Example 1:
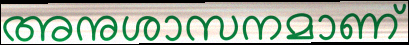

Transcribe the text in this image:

അനുശാസനമാണ്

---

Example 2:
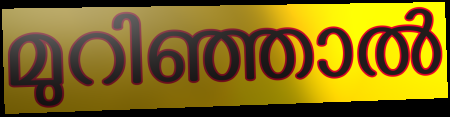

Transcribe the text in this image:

മുറിഞ്ഞാൽ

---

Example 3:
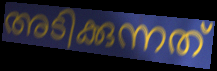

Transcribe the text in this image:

അടിക്കുന്നത്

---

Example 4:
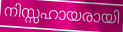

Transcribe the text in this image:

നിസ്സഹായരായി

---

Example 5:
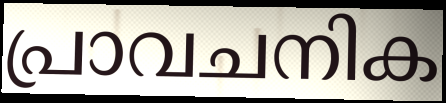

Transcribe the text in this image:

പ്രാവചനിക